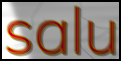
salu